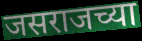
जसराजच्या